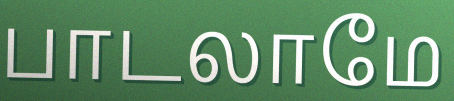
பாடலாமே